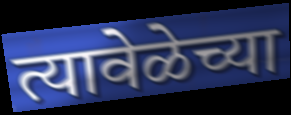
त्यावेळेच्या